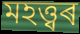
মহত্ত্বৰ